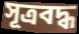
সূত্রবদ্ধ